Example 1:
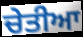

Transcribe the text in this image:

ਚੇਤੀਆ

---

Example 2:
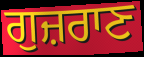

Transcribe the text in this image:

ਗੁਜ਼ਰਾਣ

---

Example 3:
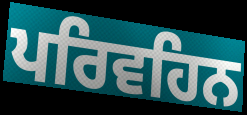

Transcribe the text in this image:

ਪਰਿਵਹਿਨ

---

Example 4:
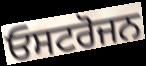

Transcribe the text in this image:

ਓਸਟਰੋਜਨ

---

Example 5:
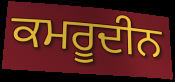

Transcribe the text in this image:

ਕਮਰੂਦੀਨ